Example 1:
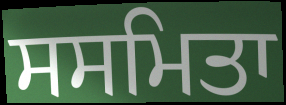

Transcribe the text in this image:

ਸਸਮਿਤਾ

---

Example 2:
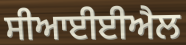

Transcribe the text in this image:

ਸੀਆਈਈਐਲ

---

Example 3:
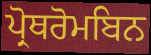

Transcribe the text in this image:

ਪ੍ਰੋਥਰੋਮਬਿਨ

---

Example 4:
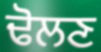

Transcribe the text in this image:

ਢੋਲਣ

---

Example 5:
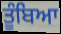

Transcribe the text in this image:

ਤੂੰਬਿਆ